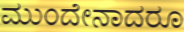
ಮುಂದೇನಾದರೂ